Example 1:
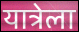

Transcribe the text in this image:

यात्रेला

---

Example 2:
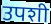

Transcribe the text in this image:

उपशी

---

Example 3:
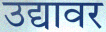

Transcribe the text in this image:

उद्यावर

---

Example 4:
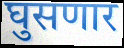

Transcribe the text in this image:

घुसणार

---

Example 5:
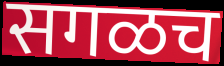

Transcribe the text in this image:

सगळच